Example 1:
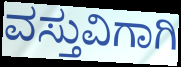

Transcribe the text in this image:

ವಸ್ತುವಿಗಾಗಿ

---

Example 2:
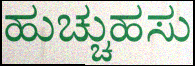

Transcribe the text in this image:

ಹುಚ್ಚುಹಸು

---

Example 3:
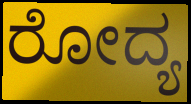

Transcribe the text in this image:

ರೋದ್ಯ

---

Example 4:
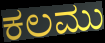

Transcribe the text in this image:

ಕಲಮು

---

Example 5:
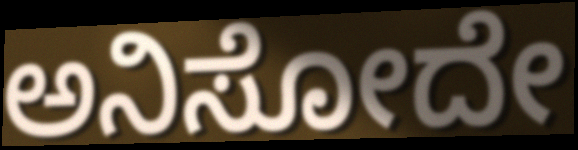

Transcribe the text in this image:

ಅನಿಸೋದೇ